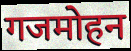
गजमोहन